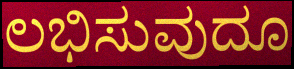
ಲಭಿಸುವುದೂ